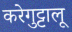
करेगुट्टालू